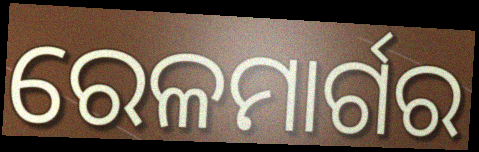
ରେଳମାର୍ଗର